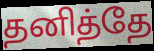
தனித்தே